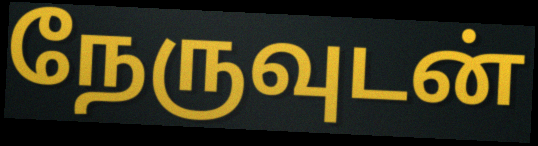
நேருவுடன்